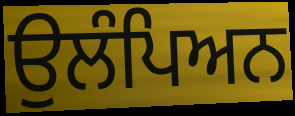
ਉਲੰਪਿਅਨ